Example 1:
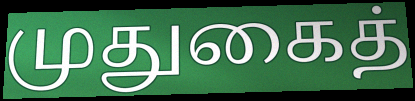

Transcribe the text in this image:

முதுகைத்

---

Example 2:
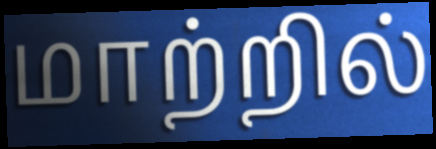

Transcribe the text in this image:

மாற்றில்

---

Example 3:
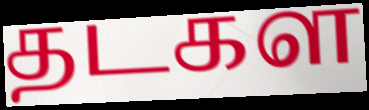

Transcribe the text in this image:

தடகள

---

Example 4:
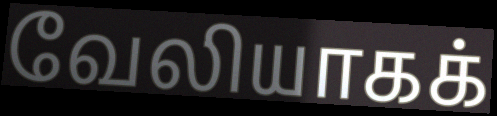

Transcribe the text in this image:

வேலியாகக்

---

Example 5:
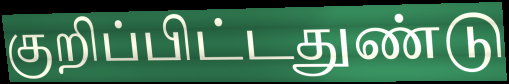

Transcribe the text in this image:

குறிப்பிட்டதுண்டு